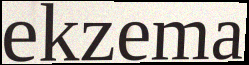
ekzema